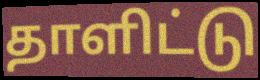
தாளிட்டு